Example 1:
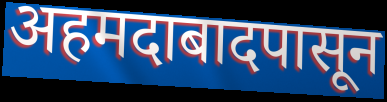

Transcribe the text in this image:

अहमदाबादपासून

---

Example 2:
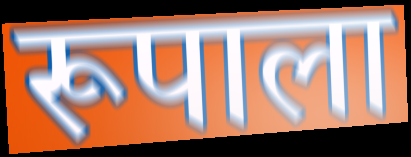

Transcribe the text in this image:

रूपाला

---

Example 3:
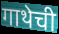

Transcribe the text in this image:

गाथेची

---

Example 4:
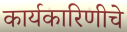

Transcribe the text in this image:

कार्यकारिणीचे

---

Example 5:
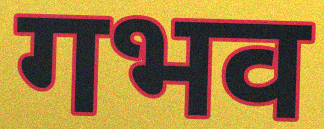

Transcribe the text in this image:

गभव